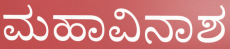
ಮಹಾವಿನಾಶ